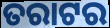
ତରାଟର